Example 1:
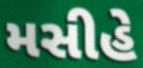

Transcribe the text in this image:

મસીહે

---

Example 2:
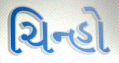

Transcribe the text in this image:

ચિન્હો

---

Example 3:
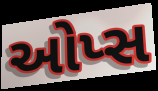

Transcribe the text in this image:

ઓપ્સ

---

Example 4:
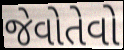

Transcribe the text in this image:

જેવોતેવો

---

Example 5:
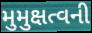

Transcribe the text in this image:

મુમુક્ષત્વની